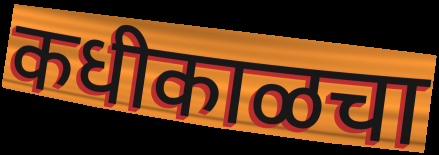
कधीकाळचा